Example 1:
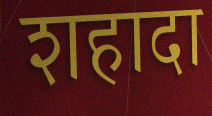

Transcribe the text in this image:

शहादा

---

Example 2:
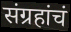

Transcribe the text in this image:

संग्रहांचं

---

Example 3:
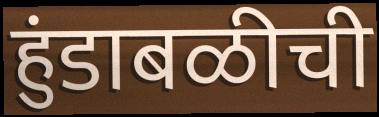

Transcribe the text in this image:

हुंडाबळीची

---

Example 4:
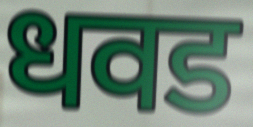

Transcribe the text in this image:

धवड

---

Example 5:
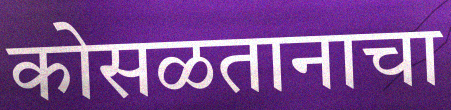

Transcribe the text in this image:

कोसळतानाचा